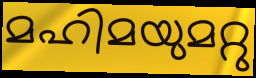
മഹിമയുമറ്റു